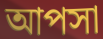
আপসা